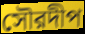
সৌরদীপ